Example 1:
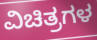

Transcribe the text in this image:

ವಿಚಿತ್ರಗಳ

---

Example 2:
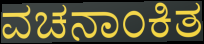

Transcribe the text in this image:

ವಚನಾಂಕಿತ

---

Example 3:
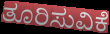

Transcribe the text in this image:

ತೂರಿಸುವಿಕೆ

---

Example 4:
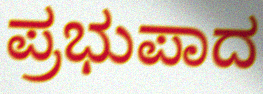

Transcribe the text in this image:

ಪ್ರಭುಪಾದ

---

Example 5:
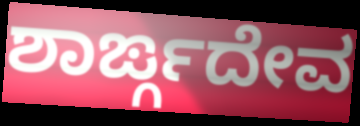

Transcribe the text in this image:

ಶಾರ್ಙ್ಗದೇವ